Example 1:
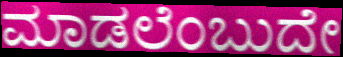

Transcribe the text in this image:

ಮಾಡಲೆಂಬುದೇ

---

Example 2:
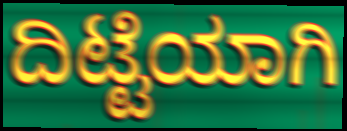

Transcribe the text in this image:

ದಿಟ್ಟೆಯಾಗಿ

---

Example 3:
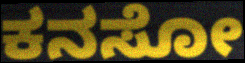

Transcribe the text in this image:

ಕನಸೋ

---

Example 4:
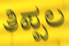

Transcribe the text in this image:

ತಿಪ್ಪಲ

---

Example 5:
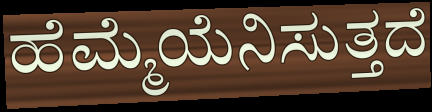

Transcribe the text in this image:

ಹೆಮ್ಮೆಯೆನಿಸುತ್ತದೆ